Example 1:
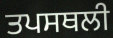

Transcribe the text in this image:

ਤਪਸਥਲੀ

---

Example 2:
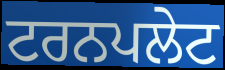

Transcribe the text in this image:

ਟਰਨਪਲੇਟ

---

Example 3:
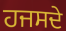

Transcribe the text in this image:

ਹਜਸਦੇ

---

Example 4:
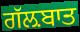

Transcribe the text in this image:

ਗੱਲ਼ਬਾਤ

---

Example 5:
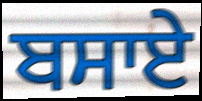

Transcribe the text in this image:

ਬਸਾਏ